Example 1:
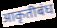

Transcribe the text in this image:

आकृतीबंध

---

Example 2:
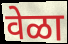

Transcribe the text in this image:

वेळा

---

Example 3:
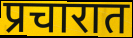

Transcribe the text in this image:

प्रचारात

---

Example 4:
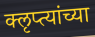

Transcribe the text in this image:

क्लृप्त्यांच्या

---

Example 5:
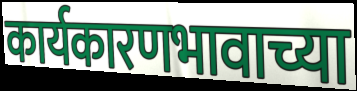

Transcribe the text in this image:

कार्यकारणभावाच्या